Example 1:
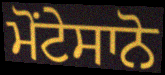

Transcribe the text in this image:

ਮੋਂਟੇਸਾਨੋ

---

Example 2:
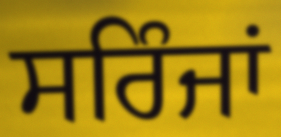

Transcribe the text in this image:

ਸਰਿੰਜਾਂ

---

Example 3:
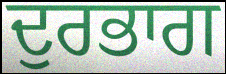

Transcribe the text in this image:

ਦੁਰਭਾਗ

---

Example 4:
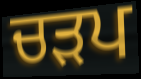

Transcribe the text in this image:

ਚੜਪ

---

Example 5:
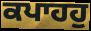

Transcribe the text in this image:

ਕਪਾਹਹੁ